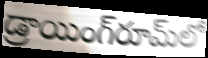
డ్రాయింగ్‌రూమ్‌లో